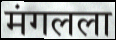
मंगलला